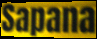
Sapana